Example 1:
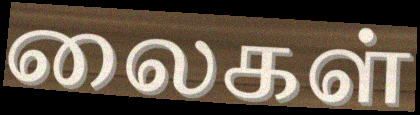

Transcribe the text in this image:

லைகள்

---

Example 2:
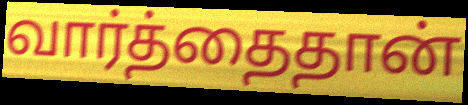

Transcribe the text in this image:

வார்த்தைதான்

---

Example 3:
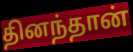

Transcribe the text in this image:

தினந்தான்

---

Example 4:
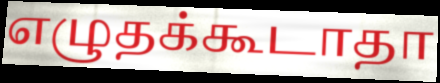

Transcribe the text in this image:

எழுதக்கூடாதா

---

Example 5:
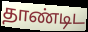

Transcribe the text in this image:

தாண்டிட